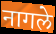
नागले